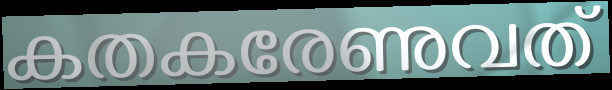
കതകരേണുവത്